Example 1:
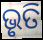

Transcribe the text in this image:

ଭୃତି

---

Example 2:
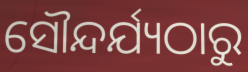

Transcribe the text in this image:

ସୌନ୍ଦର୍ଯ୍ୟଠାରୁ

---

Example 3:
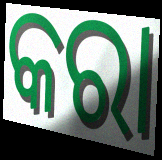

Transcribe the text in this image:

କରା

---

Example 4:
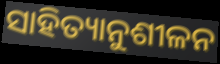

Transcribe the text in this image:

ସାହିତ୍ୟାନୁଶୀଳନ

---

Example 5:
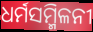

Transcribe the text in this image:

ଧର୍ମସମ୍ମିଳନୀ